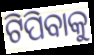
ଟିପିବାକୁ